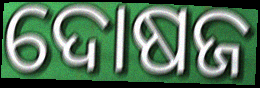
ଦୋଷଜ